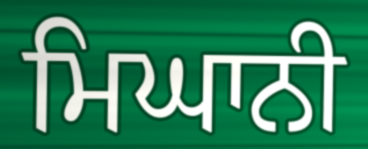
ਮਿਘਾਨੀ